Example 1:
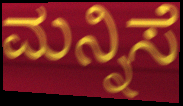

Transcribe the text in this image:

ಮನ್ನಿಸೆ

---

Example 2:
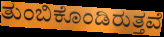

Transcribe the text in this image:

ತುಂಬಿಕೊಂಡಿರುತ್ತವೆ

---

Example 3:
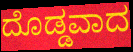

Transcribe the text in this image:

ದೊಡ್ಡವಾದ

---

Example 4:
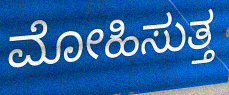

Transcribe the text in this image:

ಮೋಹಿಸುತ್ತ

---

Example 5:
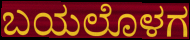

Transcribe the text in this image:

ಬಯಲೊಳಗ